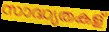
സാദ്ധ്യതകള്